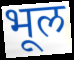
भूल